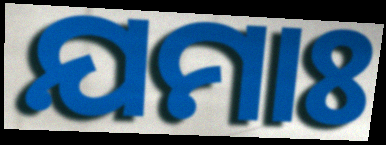
ଯମାଃ